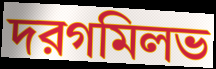
দরগমিলভ